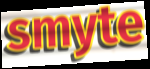
smyte